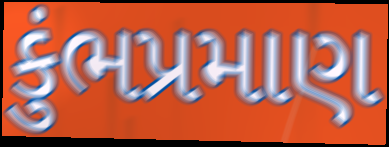
કુંભપ્રમાણ